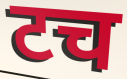
टच